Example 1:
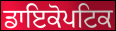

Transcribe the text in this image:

ਡਾਇਕੋਪਟਿਕ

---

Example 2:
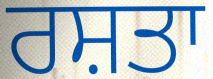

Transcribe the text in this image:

ਰਸ਼ਤਾ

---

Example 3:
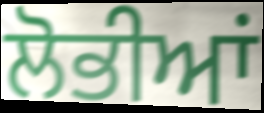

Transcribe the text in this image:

ਲੋਭੀਆਂ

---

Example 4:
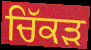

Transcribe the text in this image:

ਚਿੱਕੜ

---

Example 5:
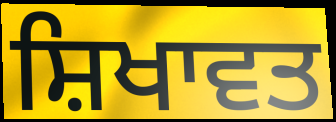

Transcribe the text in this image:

ਸ਼ਿਖਾਵਤ